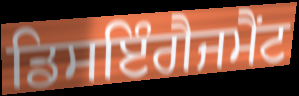
ਡਿਸਇੰਗੈਜਮੈਂਟ